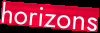
horizons